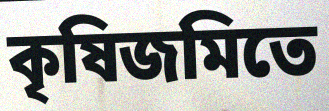
কৃষিজমিতে